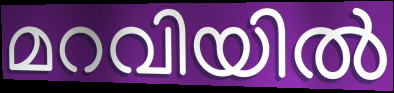
മറവിയിൽ